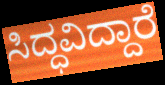
ಸಿದ್ಧವಿದ್ದಾರೆ